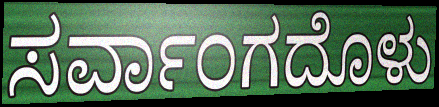
ಸರ್ವಾಂಗದೊಳು